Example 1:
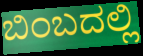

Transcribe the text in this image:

ಬಿಂಬದಲ್ಲಿ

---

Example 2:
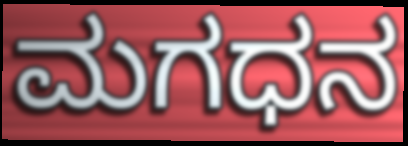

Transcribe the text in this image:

ಮಗಧನ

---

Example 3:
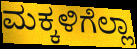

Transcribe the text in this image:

ಮಕ್ಕಳಿಗೆಲ್ಲಾ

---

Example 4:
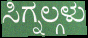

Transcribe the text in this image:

ಸಿಗ್ನಲ್ಗಳು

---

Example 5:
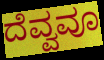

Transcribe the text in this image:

ದೆವ್ವವೂ